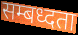
सम्बध्दता